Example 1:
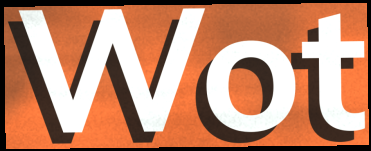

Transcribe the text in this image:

Wot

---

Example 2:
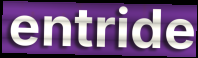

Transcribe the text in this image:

entride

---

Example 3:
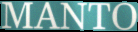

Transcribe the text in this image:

MANTO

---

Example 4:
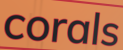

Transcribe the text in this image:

corals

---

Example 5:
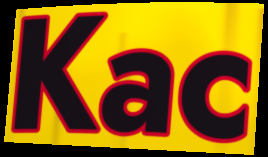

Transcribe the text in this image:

Kac